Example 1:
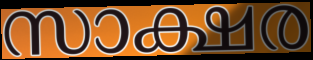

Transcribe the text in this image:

സാക്ഷര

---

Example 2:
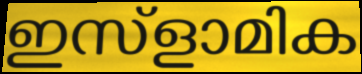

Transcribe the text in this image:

ഇസ്ളാമിക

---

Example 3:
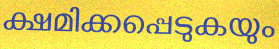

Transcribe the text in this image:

ക്ഷമിക്കപ്പെടുകയും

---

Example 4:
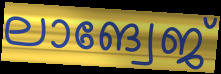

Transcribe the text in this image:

ലാങ്വേജ്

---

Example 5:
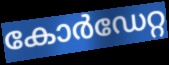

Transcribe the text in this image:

കോർഡേറ്റ